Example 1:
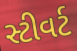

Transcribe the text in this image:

સ્ટીવર્ટ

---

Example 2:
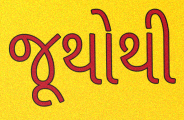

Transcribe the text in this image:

જૂથોથી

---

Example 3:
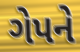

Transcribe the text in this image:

ગેપને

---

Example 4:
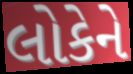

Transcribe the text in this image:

લોકેને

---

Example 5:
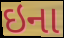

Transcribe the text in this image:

ઇના